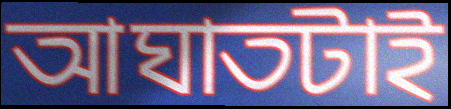
আঘাতটাই